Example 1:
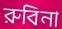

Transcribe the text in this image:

রুবিনা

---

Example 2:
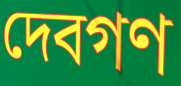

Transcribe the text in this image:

দেবগণ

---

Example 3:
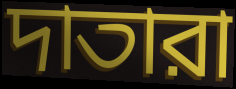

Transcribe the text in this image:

দাতারা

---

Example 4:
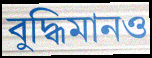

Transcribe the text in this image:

বুদ্ধিমানও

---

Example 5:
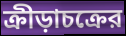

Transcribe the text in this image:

ক্রীড়াচক্রের